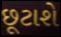
છૂટાશે